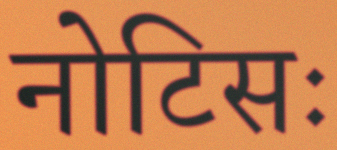
नोटिसः